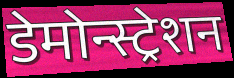
डेमोन्स्ट्रेशन